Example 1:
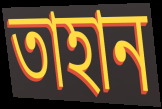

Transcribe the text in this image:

তাহান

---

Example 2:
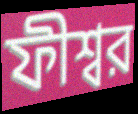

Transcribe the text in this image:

ফীশ্বর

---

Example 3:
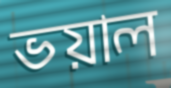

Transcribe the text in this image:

ভয়াল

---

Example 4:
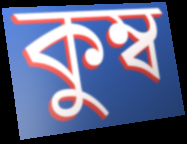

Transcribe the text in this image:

কুম্ব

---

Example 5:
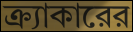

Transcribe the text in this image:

ক্র্যাকারের